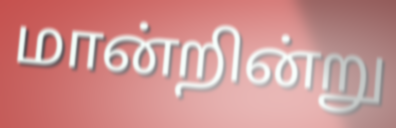
மான்றின்று